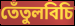
তেঁতুলবিচি